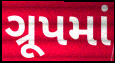
ગ્રૂપમાં